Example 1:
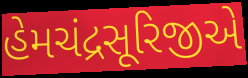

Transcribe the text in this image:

હેમચંદ્રસૂરિજીએ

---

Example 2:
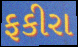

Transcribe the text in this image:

ફકીરા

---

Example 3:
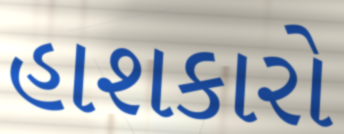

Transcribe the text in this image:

હાશકારો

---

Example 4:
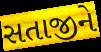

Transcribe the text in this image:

સતાજીને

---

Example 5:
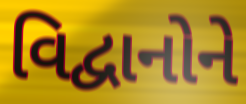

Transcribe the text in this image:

વિદ્વાનોને